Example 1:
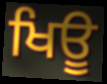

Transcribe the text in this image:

ਖਿਊ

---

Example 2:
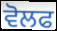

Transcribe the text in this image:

ਵੋਲਫ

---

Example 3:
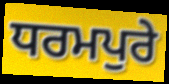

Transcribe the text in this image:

ਧਰਮਪੁਰੇ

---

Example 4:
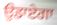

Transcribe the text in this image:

ਉਡਾਏਗਾ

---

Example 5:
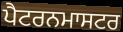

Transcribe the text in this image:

ਪੈਟਰਨਮਾਸਟਰ